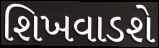
શિખવાડશે